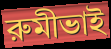
রুমীভাই